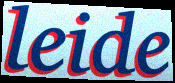
leide